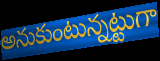
అనుకుంటున్నట్టుగా